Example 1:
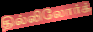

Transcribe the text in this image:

தில்லிலோர்க்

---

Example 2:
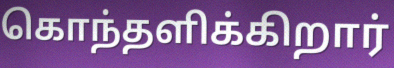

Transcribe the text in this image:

கொந்தளிக்கிறார்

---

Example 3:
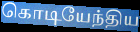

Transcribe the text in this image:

கொடியேந்திய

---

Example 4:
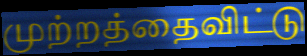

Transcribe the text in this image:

முற்றத்தைவிட்டு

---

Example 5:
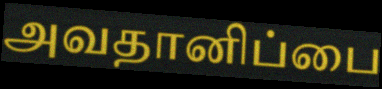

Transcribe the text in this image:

அவதானிப்பை